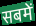
सबमें